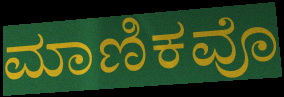
ಮಾಣಿಕವೊ